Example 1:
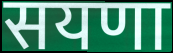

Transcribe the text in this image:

सयणा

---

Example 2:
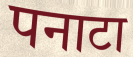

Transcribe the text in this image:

पनाटा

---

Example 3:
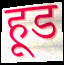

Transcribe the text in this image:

हूड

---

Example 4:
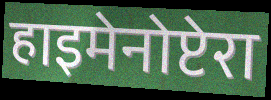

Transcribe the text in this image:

हाइमेनोप्टेरा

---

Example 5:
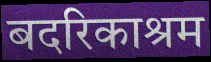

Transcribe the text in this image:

बदरिकाश्रम